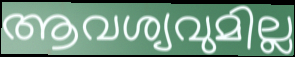
ആവശ്യവുമില്ല